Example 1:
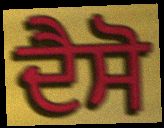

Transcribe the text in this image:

ਦੈਸੋ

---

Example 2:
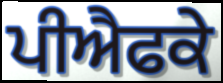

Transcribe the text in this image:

ਪੀਐਫਕੇ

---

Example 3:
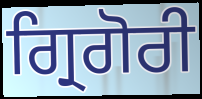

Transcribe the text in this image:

ਗ੍ਰਿਗੋਰੀ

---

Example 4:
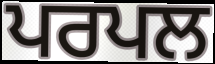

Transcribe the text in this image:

ਪਰਪਲ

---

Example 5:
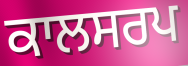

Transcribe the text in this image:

ਕਾਲਸਰਪ